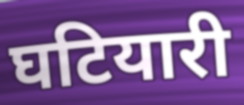
घटियारी